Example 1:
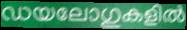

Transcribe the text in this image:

ഡയലോഗുകളിൽ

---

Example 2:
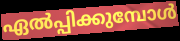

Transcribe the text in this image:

ഏൽപ്പിക്കുമ്പോൾ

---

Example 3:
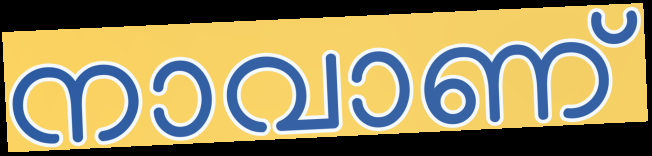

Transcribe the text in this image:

നാവാണ്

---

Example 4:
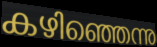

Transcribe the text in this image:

കഴിഞ്ഞെന്നു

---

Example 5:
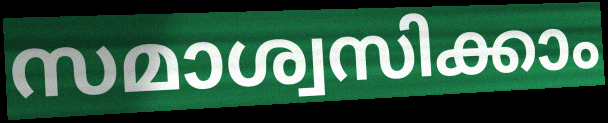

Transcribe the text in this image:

സമാശ്വസിക്കാം